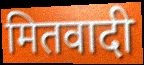
मितवादी